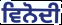
ਵਿਨੋਦੀ